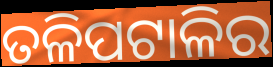
ତଳିପଟାଳିର